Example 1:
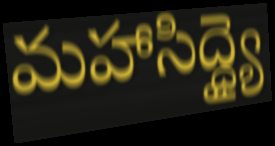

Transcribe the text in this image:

మహాసిద్ధ్యై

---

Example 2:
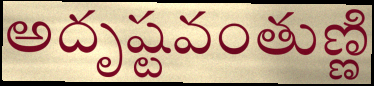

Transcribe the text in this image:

అదృష్టవంతుణ్ణి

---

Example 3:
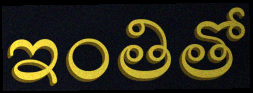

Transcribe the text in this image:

ఇంతితో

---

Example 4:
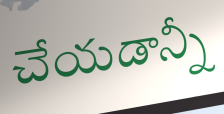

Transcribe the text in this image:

చేయడాన్నీ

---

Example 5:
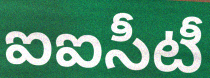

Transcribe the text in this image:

ఐఐసీటీ